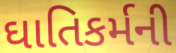
ઘાતિકર્મની